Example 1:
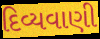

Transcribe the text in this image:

દિવ્યવાણી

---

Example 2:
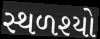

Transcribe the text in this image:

સ્થળશ્યો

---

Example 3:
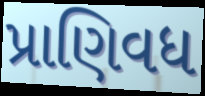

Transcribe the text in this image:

પ્રાણિવધ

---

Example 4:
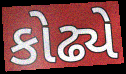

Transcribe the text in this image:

કોઢ્યે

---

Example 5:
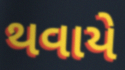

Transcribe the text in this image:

થવાયે